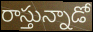
రాస్తున్నాడో